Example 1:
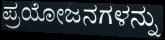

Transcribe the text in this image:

ಪ್ರಯೋಜನಗಳನ್ನು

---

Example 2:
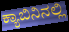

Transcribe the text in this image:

ಕ್ಯಾಬಿನಿನಲ್ಲಿ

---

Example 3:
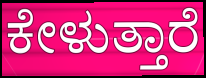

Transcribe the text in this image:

ಕೇಳುತ್ತಾರೆ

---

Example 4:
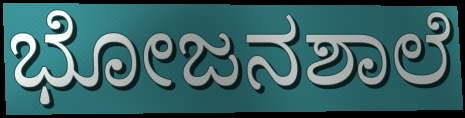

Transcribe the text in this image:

ಭೋಜನಶಾಲೆ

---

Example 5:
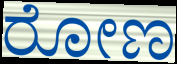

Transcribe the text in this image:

ರೋಣ